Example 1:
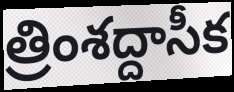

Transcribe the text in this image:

త్రింశద్దాసీక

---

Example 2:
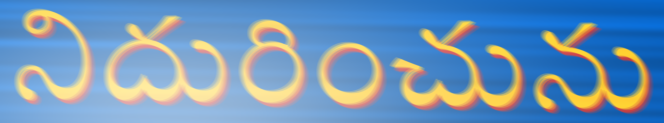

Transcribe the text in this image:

నిదురించును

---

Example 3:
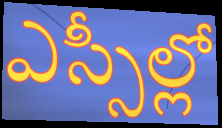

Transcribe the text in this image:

ఎస్సీల్లో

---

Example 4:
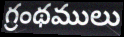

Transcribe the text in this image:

గ్రంథములు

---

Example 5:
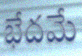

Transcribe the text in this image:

భేదమే